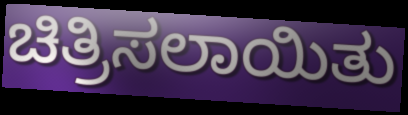
ಚಿತ್ರಿಸಲಾಯಿತು